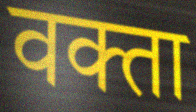
वक्ता